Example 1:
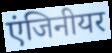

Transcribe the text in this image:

एंजिनीयर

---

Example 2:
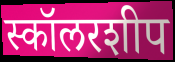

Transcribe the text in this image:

स्कॉलरशीप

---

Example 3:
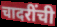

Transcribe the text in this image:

चादरींची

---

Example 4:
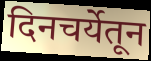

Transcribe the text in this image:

दिनचर्येतून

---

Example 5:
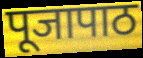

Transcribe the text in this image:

पूजापाठ